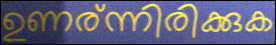
ഉണര്ന്നിരിക്കുക